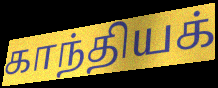
காந்தியக்